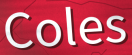
Coles